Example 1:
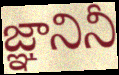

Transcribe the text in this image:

జ్ఞానినీ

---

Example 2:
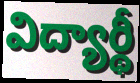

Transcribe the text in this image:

విద్యార్థీ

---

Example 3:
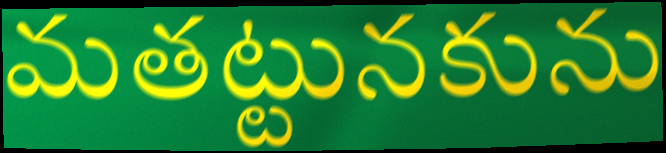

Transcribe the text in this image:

మతట్టునకును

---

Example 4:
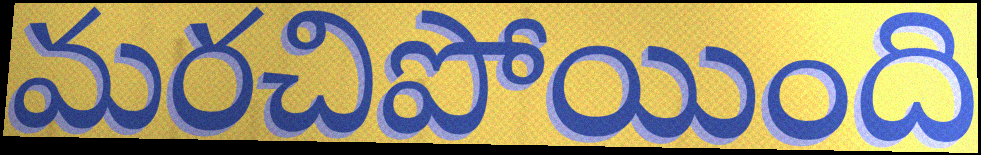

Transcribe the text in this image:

మరచిపోయింది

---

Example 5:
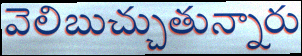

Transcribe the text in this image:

వెలిబుచ్చుతున్నారు